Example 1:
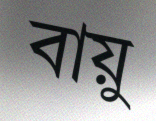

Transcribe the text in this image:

বায়ু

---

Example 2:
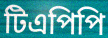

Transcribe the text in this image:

টিএপিপি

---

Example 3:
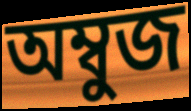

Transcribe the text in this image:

অম্বুজ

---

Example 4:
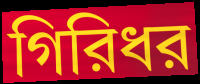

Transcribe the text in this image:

গিরিধর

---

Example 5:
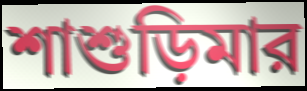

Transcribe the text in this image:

শাশুড়িমার